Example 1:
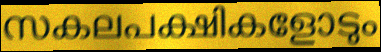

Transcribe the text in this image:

സകലപക്ഷികളോടും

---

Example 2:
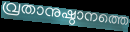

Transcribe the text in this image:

വ്രതാനുഷ്ഠാനത്തെ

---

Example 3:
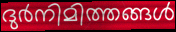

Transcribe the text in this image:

ദുർനിമിത്തങ്ങൾ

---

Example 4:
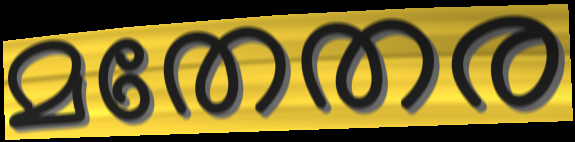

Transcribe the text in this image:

മതേതര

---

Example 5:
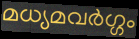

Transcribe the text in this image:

മധ്യമവർഗ്ഗം